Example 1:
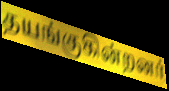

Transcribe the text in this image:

தயங்குகின்றனர்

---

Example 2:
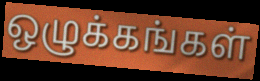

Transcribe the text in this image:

ஒழுக்கங்கள்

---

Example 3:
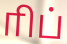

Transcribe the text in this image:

ரிப்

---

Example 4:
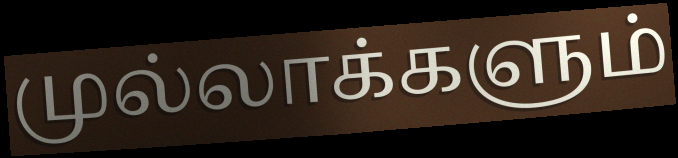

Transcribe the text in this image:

முல்லாக்களும்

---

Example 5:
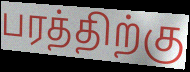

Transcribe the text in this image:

பரத்திற்கு